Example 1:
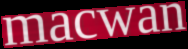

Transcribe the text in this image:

macwan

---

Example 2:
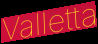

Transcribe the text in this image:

Valletta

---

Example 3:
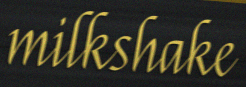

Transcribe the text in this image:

milkshake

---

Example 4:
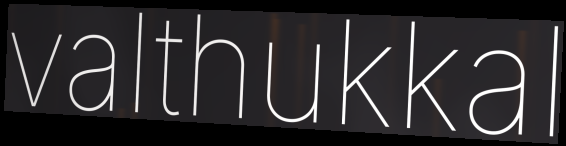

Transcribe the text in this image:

valthukkal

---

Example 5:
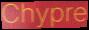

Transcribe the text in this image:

Chypre